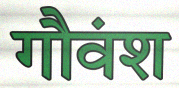
गौवंश